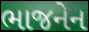
ભાજનેન